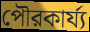
পৌরকার্য্য